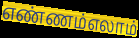
எண்ணம்எலாம்